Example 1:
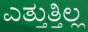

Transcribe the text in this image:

ಎತ್ತುತ್ತಿಲ್ಲ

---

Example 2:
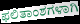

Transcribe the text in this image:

ಫಲಿತಾಂಶಗಳಾಗಿ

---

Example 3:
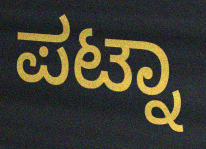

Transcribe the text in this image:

ಪಟ್ನಾ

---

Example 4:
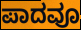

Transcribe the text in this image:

ಪಾದವೂ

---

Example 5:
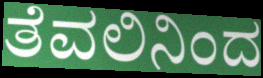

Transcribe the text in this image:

ತೆವಲಿನಿಂದ